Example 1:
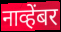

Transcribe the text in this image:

नाव्हेंबर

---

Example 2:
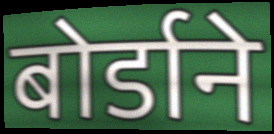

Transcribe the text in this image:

बोर्डाने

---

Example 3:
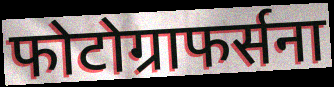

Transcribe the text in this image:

फोटोग्राफर्सना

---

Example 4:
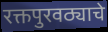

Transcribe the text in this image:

रक्तपुरवठ्याचे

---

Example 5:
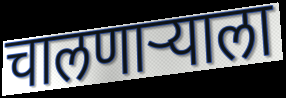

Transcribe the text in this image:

चालणाऱ्याला